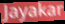
Jayakar